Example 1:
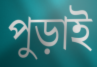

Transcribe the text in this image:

পুড়াই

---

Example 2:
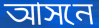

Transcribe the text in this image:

আসনে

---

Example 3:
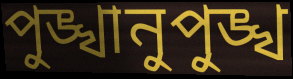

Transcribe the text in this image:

পুঙ্খানুপুঙ্খ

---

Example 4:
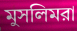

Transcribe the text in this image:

মুসলিমরা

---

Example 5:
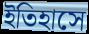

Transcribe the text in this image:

ইতিহাসে